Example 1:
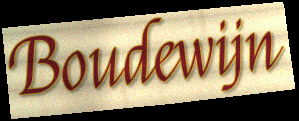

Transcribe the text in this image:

Boudewijn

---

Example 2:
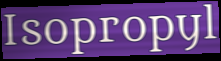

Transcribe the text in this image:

Isopropyl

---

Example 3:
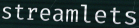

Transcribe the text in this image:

streamlets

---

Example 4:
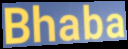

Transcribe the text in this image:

Bhaba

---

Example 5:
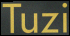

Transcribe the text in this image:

Tuzi